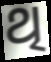
ଥି